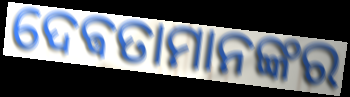
ଦେଵତାମାନଙ୍କର